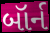
બૉર્ન